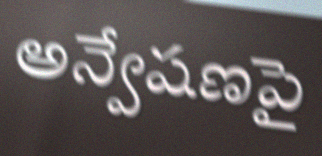
అన్వేషణపై